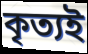
কৃত্যই